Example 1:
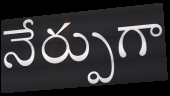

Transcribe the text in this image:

నేర్పుగా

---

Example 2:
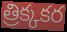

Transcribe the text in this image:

త్రిక్కకర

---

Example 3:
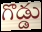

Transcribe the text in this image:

గొడ్డు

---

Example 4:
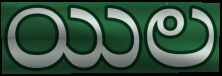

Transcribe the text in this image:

యిల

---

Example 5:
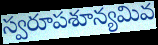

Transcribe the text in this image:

స్వరూపశూన్యమివ